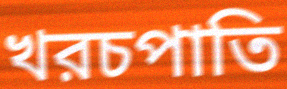
খরচপাতি